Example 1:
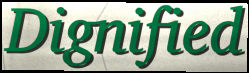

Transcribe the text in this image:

Dignified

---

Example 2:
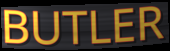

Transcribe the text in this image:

BUTLER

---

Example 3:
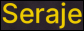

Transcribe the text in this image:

Seraje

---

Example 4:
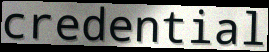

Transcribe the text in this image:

credential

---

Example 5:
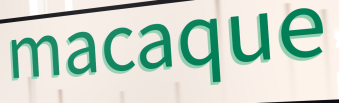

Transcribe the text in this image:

macaque